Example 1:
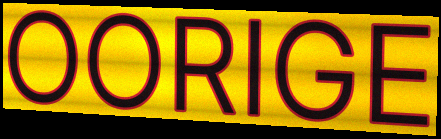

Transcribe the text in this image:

OORIGE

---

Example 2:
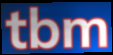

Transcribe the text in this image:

tbm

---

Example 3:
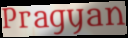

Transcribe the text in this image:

Pragyan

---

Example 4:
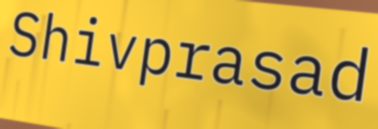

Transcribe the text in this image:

Shivprasad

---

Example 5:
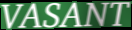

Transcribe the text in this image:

VASANT